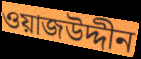
ওয়াজউদ্দীন